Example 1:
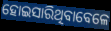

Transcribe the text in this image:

ହୋଇସାରିଥିବାବେଳେ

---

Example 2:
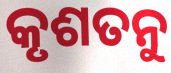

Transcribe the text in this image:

କୃଶତନୁ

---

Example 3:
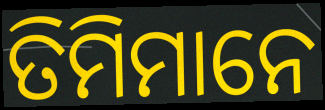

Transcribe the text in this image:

ତିମିମାନେ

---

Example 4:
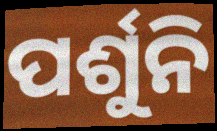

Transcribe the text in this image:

ପର୍ଶୁନି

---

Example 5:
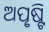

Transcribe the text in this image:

ଅପୃଷ୍ଟି